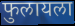
फुलायला